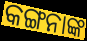
କଙ୍ଗନାଙ୍କ